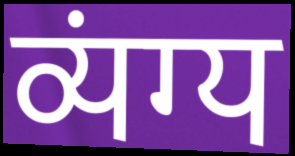
व्यंग्य